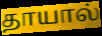
தாயால்